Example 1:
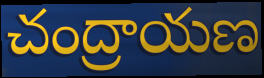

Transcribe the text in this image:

చంద్రాయణ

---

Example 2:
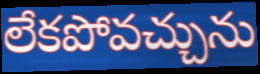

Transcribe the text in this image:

లేకపోవచ్చును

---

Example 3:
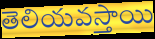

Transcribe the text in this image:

తెలియవస్తాయి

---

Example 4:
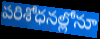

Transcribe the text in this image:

పరిశోధనల్లోనూ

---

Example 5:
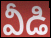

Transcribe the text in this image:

వీడి